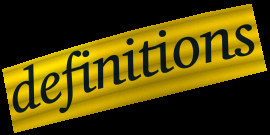
definitions